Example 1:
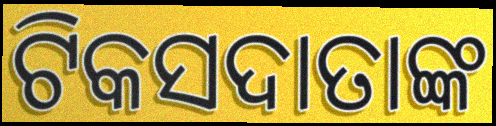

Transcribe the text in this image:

ଟିକସଦାତାଙ୍କ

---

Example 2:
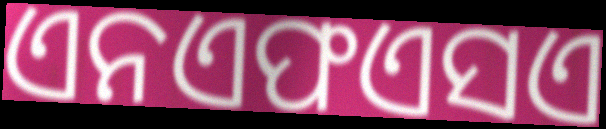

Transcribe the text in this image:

ଏନଏଫଏସଏ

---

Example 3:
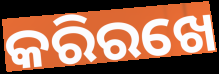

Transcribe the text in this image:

କରିରଖେ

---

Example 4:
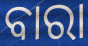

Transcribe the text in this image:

ବାରା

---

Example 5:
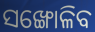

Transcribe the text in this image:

ସଙ୍ଖୋଳିବ